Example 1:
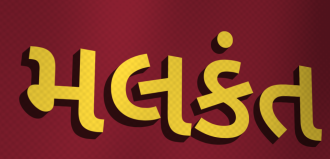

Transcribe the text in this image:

મલકંત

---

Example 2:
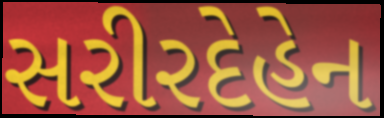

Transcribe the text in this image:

સરીરદેહેન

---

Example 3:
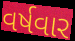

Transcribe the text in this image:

વર્ષવાર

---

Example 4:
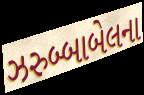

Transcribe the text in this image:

ઝરુબ્બાબેલના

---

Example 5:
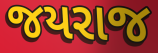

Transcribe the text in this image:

જયરાજ